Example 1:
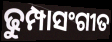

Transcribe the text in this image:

ଢୁମ୍ପାସଂଗୀତ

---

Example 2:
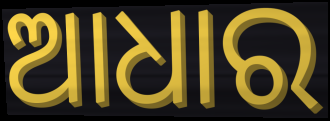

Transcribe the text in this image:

ଆଧାର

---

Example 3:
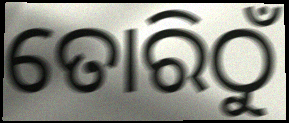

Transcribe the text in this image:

ତୋରିଠୁଁ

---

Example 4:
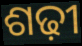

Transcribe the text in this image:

ଶଢ଼ୀ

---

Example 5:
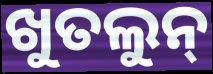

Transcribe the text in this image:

ଖୁତଲୁନ୍